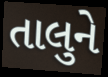
તાલુને